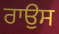
ਰਾਉਸ